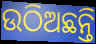
ଉଠିଅଛନ୍ତି